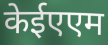
केईएएम